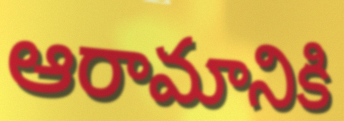
ఆరామానికి